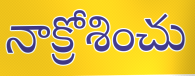
నాక్రోశించు